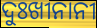
ଦୁଃଖୀନାନୀ